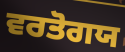
ਵਰਤੋਗਯ